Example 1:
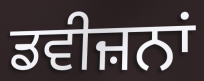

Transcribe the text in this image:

ਡਵੀਜ਼ਨਾਂ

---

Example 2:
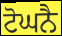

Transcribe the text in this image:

ਟੋਘਨੈ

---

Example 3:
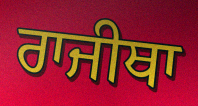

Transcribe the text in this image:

ਰਾਜੀਥਾ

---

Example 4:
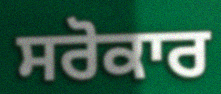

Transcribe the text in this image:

ਸਰੋਕਾਰ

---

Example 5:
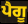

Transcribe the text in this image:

ਪੈਗੂ